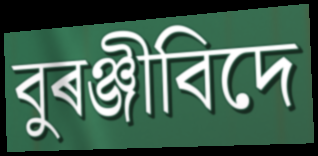
বুৰঞ্জীবিদে